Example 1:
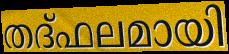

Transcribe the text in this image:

തദ്ഫലമായി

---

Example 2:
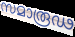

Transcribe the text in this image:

സമാരൂഢ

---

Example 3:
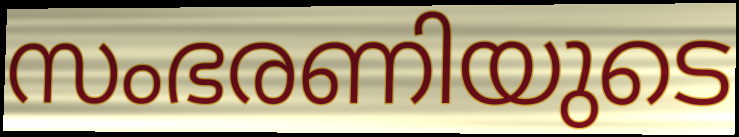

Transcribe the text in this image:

സംഭരണിയുടെ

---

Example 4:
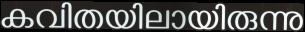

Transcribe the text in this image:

കവിതയിലായിരുന്നു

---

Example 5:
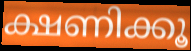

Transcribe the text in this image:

ക്ഷണിക്കൂ